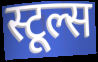
स्टूल्स